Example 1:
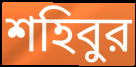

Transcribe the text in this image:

শহিবুর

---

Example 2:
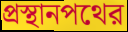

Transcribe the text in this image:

প্রস্থানপথের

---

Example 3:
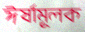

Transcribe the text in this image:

ঈর্ষামূলক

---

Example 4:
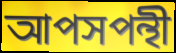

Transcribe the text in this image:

আপসপন্থী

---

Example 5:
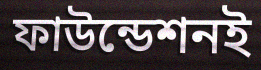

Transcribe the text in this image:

ফাউন্ডেশনই